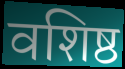
वशिष्ठ